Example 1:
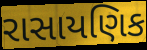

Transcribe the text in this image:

રાસાયણિક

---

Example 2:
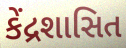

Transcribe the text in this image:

કેંદ્રશાસિત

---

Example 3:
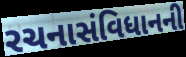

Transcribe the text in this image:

રચનાસંવિધાનની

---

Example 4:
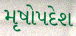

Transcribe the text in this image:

મૃષોપદેશ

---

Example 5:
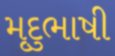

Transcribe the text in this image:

મૃદુભાષી